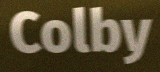
Colby